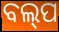
ବଲ୍‍ପ